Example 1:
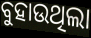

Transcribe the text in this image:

ବୁହାଉଥିଲା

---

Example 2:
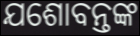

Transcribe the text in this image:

ଯଶୋବନ୍ତଙ୍କ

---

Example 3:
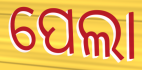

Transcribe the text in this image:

ପେଲା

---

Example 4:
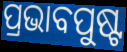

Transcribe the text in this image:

ପ୍ରଭାବପୁଷ୍ଟ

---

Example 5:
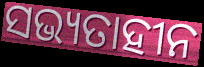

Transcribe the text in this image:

ସଭ୍ୟତାହୀନ